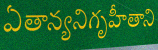
ఏతాన్యనిగృహీతాని